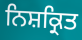
ਨਿਸ਼ਕ੍ਰਿਤ